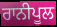
ਰਾਨੀਪੂਲ